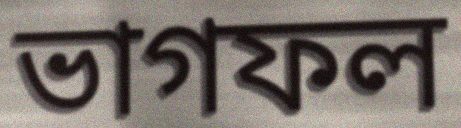
ভাগফল